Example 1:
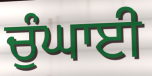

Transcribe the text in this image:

ਚੁੰਘਾਈ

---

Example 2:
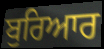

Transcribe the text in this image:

ਬੁਰਿਆਰ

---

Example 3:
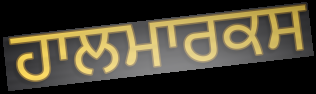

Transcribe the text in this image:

ਹਾਲਮਾਰਕਸ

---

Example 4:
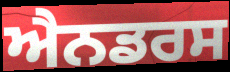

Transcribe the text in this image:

ਐਨਡਰਸ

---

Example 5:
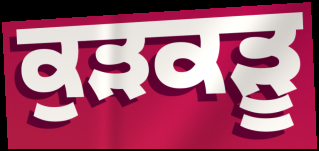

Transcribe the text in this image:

ਕੁੜਕੜੂ